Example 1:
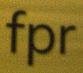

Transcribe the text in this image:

fpr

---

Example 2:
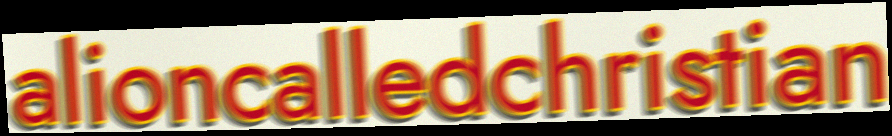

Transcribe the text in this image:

alioncalledchristian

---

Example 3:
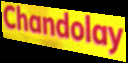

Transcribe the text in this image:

Chandolay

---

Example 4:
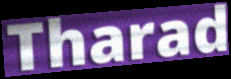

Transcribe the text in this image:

Tharad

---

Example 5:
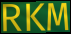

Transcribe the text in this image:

RKM